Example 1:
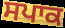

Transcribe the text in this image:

ਸਪਾਕ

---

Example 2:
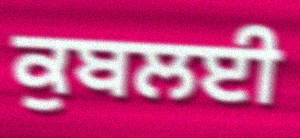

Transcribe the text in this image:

ਕੁਬਲਈ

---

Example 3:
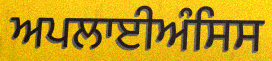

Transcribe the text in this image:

ਅਪਲਾਈਅੰਸਿਸ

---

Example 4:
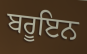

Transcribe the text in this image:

ਬਰੂਇਨ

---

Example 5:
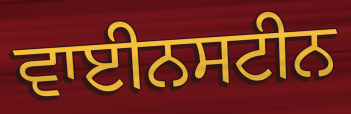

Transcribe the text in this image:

ਵਾਈਨਸਟੀਨ